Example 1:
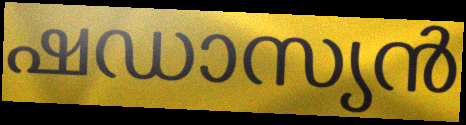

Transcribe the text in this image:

ഷഡാസ്യൻ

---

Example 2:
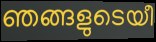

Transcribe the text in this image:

ഞങ്ങളുടെയീ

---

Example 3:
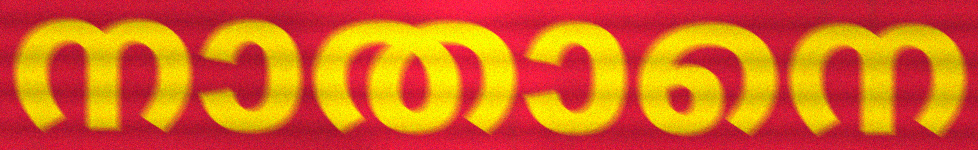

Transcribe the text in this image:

നാതാനെ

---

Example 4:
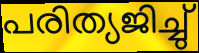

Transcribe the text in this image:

പരിത്യജിച്ചു്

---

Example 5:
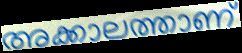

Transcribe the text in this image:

അക്കാലത്താണ്